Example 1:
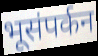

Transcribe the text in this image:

भूसंपर्कन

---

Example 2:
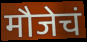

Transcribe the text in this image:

मौजेचं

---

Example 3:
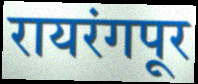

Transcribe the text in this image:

रायरंगपूर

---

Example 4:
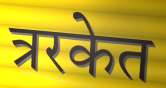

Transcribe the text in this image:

त्ररकेत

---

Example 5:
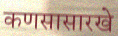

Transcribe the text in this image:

कणसासारखे